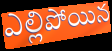
ఎల్లిపోయిన